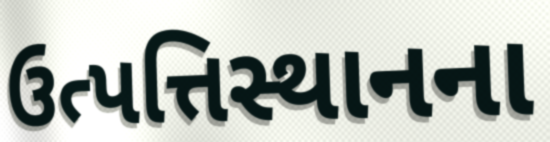
ઉત્પત્તિસ્થાનના